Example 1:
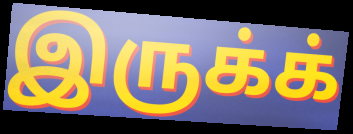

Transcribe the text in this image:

இருக்க்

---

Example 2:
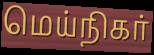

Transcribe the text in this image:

மெய்நிகர்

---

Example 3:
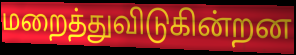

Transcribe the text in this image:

மறைத்துவிடுகின்றன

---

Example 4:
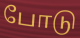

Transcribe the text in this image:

போடு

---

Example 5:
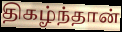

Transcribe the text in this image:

திகழ்ந்தான்